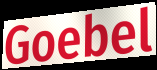
Goebel